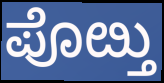
ಪೊೞ್ತು